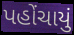
પહોંચાયું